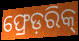
ଫ୍ରେଡ଼ରିକ୍